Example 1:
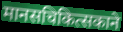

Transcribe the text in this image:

मानसचिकित्सकाने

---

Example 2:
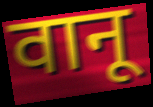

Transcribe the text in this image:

वानू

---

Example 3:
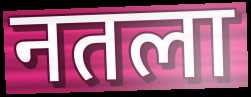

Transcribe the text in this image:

नतला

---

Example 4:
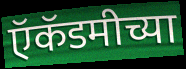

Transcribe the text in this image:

ऍकॅडमीच्या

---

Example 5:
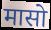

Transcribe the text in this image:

मासो